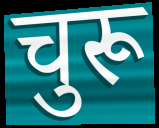
चुरू